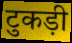
टुकड़ी